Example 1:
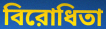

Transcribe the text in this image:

বিরোধিতা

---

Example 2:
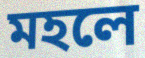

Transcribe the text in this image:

মহলে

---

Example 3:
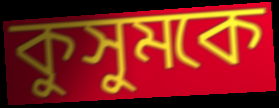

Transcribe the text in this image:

কুসুমকে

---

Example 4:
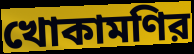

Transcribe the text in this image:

খোকামণির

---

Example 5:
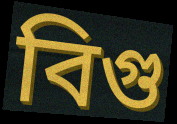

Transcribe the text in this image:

বিগু